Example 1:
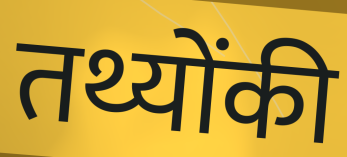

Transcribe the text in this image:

तथ्योंकी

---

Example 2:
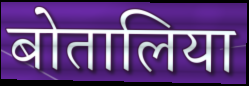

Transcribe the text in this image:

बोतालिया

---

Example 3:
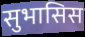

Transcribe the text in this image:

सुभासिस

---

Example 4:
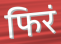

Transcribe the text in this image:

फिरं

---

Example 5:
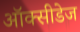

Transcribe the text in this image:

ऑक्सीडेज